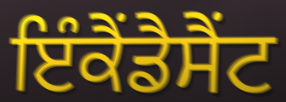
ਇੰਕੈਂਡੈਸੈਂਟ